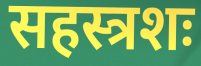
सहस्त्रशः